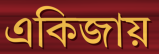
একিজায়